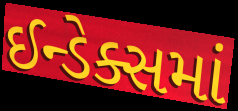
ઈન્ડેક્સમાં